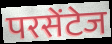
परसेंटेज